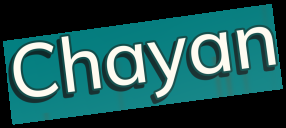
Chayan